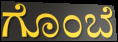
ಗೊಂಬೆ